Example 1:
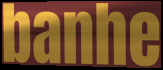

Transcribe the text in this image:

banhe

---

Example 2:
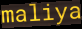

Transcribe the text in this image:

maliya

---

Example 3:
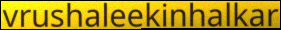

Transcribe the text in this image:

vrushaleekinhalkar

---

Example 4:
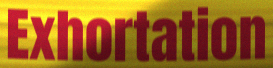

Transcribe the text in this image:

Exhortation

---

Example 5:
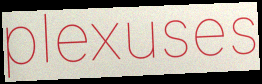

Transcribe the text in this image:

plexuses